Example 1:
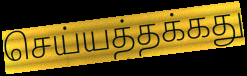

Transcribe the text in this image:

செய்யத்தக்கது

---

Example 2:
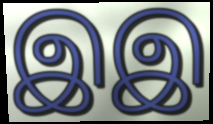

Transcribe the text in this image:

இஇ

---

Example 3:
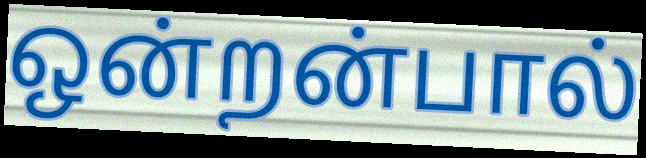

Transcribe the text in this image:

ஒன்றன்பால்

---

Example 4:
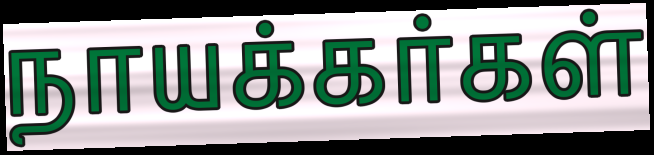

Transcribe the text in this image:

நாயக்கர்கள்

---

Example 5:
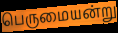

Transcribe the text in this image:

பெருமையன்று